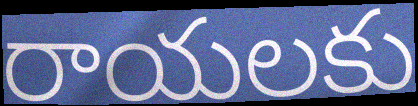
రాయలకు